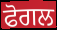
ਫੋਗਲ